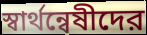
স্বার্থন্বেষীদের